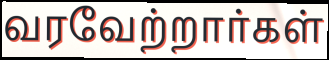
வரவேற்றார்கள்